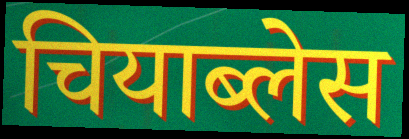
चियाब्लेस